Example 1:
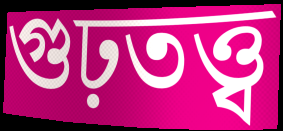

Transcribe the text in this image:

গুঢ়তত্ত্ব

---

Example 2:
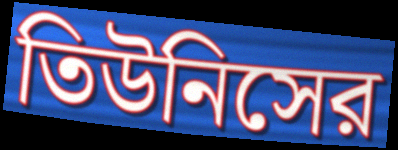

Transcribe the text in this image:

তিউনিসের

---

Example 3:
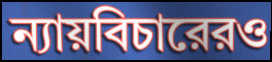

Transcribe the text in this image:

ন্যায়বিচারেরও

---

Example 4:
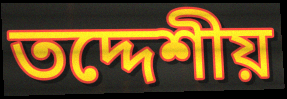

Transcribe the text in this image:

তদ্দেশীয়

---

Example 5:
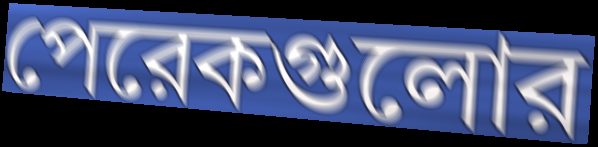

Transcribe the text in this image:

পেরেকগুলোর